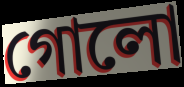
গোলো